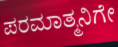
ಪರಮಾತ್ಮನಿಗೇ